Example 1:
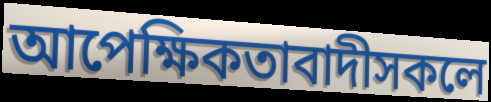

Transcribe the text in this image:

আপেক্ষিকতাবাদীসকলে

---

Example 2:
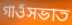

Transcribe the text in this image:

গাওঁসভাত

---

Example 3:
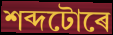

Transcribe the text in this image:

শব্দটোৰে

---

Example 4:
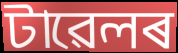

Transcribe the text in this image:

টাৱেলৰ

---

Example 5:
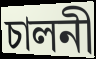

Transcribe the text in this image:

চালনী